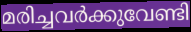
മരിച്ചവർക്കുവേണ്ടി